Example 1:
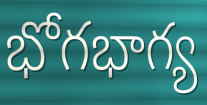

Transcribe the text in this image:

భోగభాగ్య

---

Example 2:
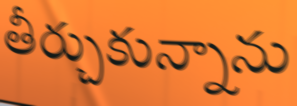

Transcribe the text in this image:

తీర్చుకున్నాను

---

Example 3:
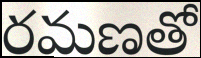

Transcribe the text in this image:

రమణతో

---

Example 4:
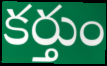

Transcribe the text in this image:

కర్తుం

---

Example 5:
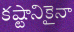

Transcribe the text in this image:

కష్టానికైనా